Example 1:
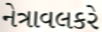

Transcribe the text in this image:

નેત્રાવલકરે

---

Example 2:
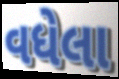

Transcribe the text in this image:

વધેલા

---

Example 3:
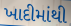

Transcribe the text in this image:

ખાદીમાંથી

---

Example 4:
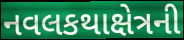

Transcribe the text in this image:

નવલકથાક્ષેત્રની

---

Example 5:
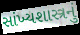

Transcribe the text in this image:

સાંખ્યશાસ્ત્રનું